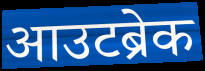
आउटब्रेक